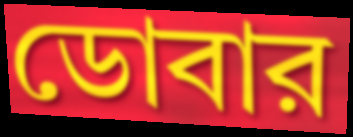
ডোবার